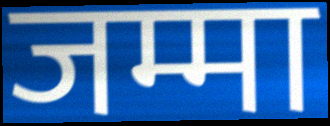
जम्मा